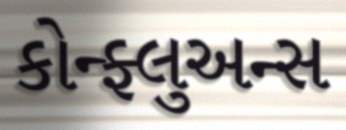
કોન્ફ્લુઅન્સ